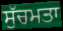
ਸੁੱਚਮਤਾ